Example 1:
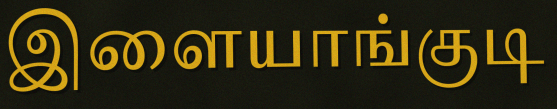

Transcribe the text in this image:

இளையாங்குடி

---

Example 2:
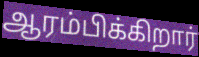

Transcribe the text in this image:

ஆரம்பிக்கிறார்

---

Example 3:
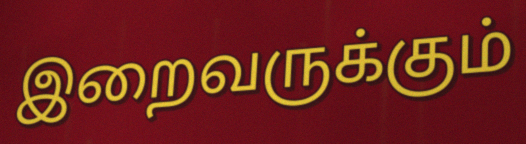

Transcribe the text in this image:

இறைவருக்கும்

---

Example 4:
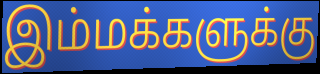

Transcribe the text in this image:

இம்மக்களுக்கு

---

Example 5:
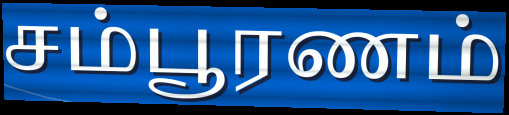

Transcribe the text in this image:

சம்பூரணம்